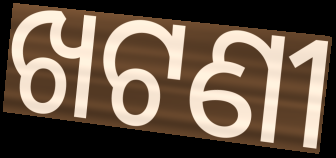
ଖଟଣୀ